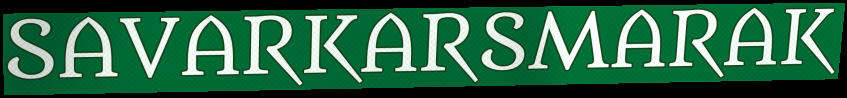
SAVARKARSMARAK